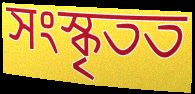
সংস্কৃতত